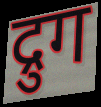
द्रुग